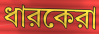
ধারকেরা